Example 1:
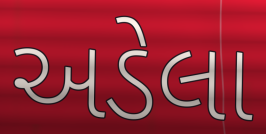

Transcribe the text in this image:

અડેલા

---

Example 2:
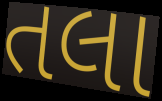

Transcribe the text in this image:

તલા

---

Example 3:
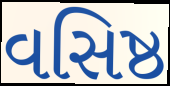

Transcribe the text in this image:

વસિષ્ઠ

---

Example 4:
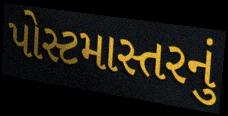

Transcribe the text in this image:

પોસ્ટમાસ્તરનું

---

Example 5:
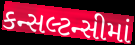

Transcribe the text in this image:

કન્સલ્ટન્સીમાં